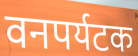
वनपर्यटक